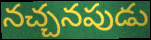
నచ్చనపుడు